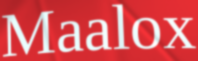
Maalox